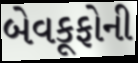
બેવકૂફોની